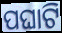
ପଘାଟି